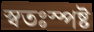
স্বতঃস্পষ্ট